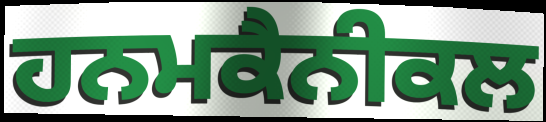
ਹਨਮਕੈਨੀਕਲ